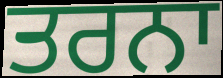
ਤਰਨਾ